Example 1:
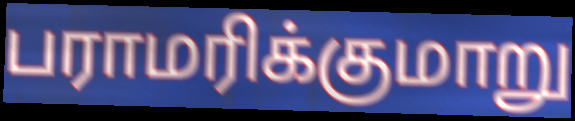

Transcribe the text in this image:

பராமரிக்குமாறு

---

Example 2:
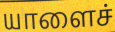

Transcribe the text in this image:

யாளைச்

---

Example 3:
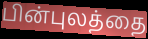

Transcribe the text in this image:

பின்புலத்தை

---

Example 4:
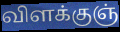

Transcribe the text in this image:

விளக்குஞ்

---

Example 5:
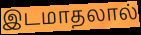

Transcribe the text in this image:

இடமாதலால்